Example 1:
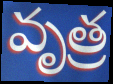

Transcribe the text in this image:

వృత్ర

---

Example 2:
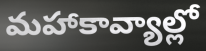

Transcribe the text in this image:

మహాకావ్యాల్లో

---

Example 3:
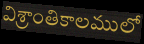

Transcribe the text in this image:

విశ్రాంతికాలములో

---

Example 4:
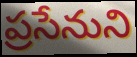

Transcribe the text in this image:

ప్రసేనుని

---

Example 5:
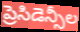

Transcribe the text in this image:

ప్రెసిడెన్సీల